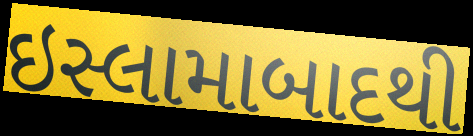
ઇસ્લામાબાદથી